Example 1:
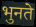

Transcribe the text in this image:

भुनते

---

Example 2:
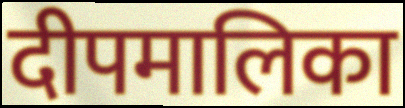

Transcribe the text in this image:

दीपमालिका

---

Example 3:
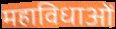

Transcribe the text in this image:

महाविधाओं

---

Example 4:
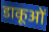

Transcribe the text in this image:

डाकूओं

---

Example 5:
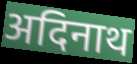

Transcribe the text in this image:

अदिनाथ